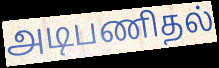
அடிபணிதல்